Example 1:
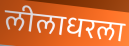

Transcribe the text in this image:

लीलाधरला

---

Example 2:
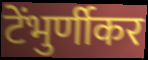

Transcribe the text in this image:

टेंभुर्णीकर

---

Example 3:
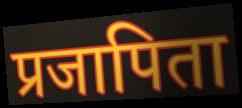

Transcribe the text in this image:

प्रजापिता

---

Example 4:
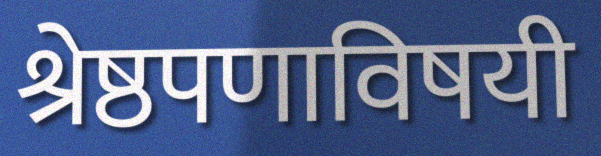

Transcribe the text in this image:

श्रेष्ठपणाविषयी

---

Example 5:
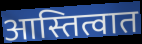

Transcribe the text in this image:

आस्तित्वात